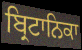
ਬ੍ਰਿਟਾਨਿਕਾ